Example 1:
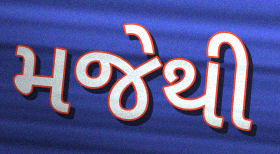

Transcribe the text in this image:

મજેથી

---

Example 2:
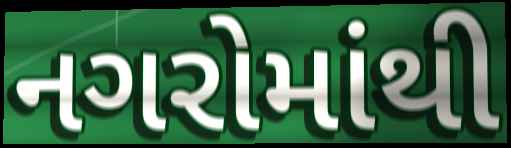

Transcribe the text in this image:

નગરોમાંથી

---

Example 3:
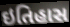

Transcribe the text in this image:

ઇતિહાસ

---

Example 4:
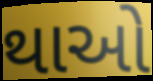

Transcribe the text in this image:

થાઓ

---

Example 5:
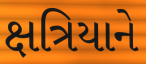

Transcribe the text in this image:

ક્ષત્રિયાને